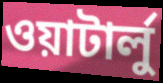
ওয়াটার্লু